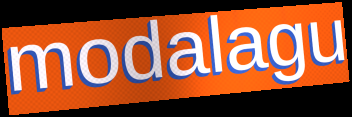
modalagu